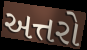
અત્તરો